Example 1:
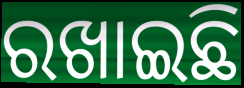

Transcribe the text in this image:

ରଖାଇଛି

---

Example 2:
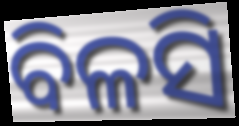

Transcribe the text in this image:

ବିଳସି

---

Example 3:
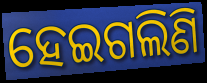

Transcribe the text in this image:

ହେଇଗଲିଣି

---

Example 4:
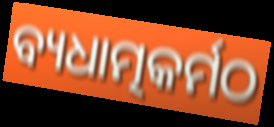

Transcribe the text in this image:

ବ୍ୟଧାତ୍ମକର୍ମଠ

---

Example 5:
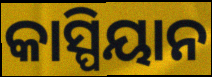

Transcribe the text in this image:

କାସ୍ପିୟାନ